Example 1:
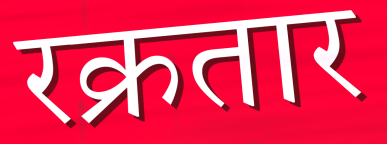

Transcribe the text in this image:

रक्रतार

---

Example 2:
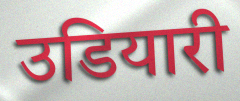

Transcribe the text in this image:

उडियारी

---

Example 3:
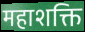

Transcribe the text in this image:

महाशक्ति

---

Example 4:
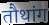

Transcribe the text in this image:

तौथांग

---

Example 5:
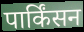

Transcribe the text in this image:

पार्किंसन